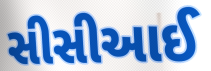
સીસીઆઈ